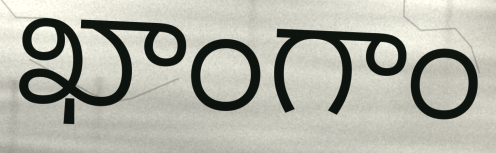
ఖాంగాం